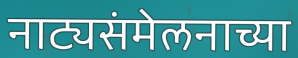
नाट्यसंमेलनाच्या